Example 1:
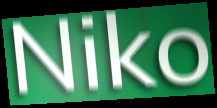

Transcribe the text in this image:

Niko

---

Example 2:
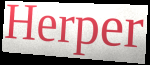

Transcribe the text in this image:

Herper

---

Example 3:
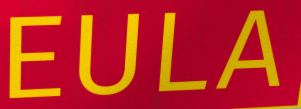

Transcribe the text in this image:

EULA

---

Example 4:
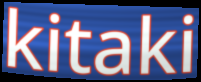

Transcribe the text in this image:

kitaki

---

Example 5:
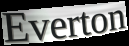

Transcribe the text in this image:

Everton